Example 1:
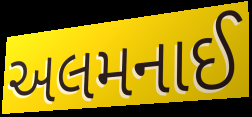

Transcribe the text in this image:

અલમનાઈ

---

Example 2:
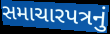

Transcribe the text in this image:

સમાચારપત્રનું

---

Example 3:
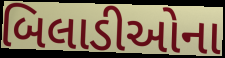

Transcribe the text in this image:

બિલાડીઓના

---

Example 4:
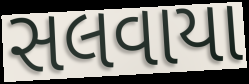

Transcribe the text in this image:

સલવાયા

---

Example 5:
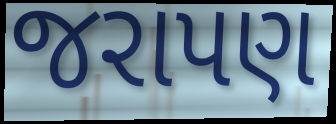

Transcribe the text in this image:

જરાપણ